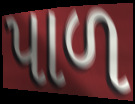
પાળ